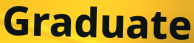
Graduate